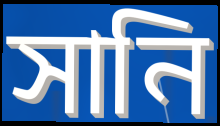
সানি